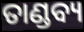
ତାଣ୍ଡବ୍ୟ